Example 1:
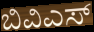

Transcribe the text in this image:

ಬಿವಿಎಸ್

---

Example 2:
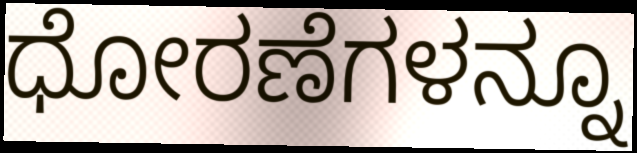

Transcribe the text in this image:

ಧೋರಣೆಗಳನ್ನೂ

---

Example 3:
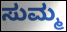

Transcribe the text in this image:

ಸುಮ್ಮ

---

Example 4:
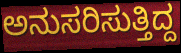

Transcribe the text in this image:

ಅನುಸರಿಸುತ್ತಿದ್ದ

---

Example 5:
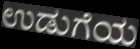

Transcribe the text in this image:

ಉಡುಗೆಯ